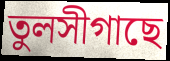
তুলসীগাছে